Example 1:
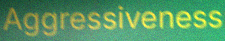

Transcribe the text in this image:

Aggressiveness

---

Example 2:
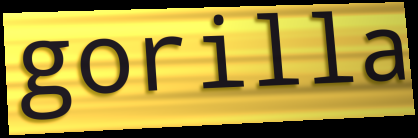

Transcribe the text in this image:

gorilla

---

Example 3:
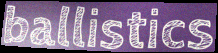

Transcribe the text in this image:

ballistics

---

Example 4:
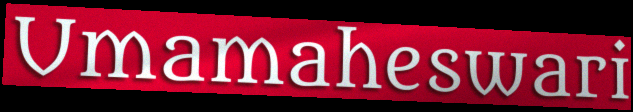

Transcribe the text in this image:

Umamaheswari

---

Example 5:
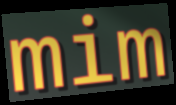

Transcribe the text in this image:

mim